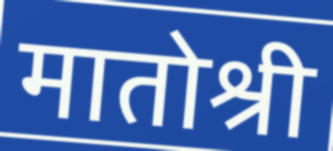
मातोश्री